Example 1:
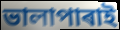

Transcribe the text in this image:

ভালাপাৰাই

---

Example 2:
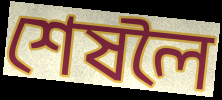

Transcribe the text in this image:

শেষলৈ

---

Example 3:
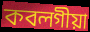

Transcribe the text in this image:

কবলগীয়া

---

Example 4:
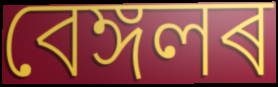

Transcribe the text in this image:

বেঙ্গলৰ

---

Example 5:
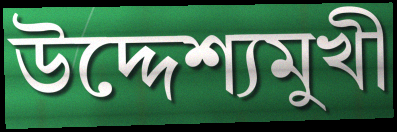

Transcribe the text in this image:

উদ্দেশ্য়মুখী